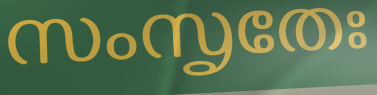
സംസൃതേഃ